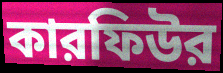
কারফিউর